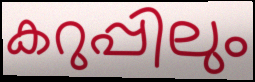
കറുപ്പിലും